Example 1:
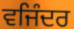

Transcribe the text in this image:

ਵਜਿੰਦਰ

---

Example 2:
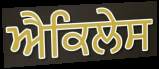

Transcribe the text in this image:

ਐਕਿਲੇਸ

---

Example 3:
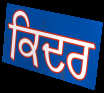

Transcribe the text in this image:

ਕਿਦਰ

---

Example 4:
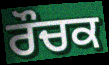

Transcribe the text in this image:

ਰੌਚਕ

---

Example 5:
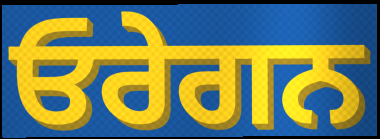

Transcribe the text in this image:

ਓਰੇਗਨ